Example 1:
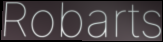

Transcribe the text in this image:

Robarts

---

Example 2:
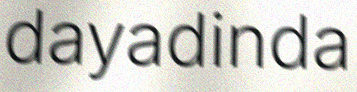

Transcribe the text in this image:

dayadinda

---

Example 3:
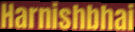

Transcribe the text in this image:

Harnishbhai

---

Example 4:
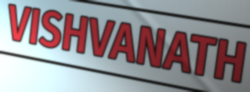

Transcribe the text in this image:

VISHVANATH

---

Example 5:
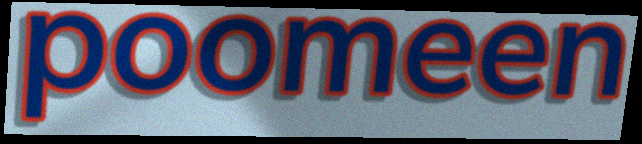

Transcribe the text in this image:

poomeen